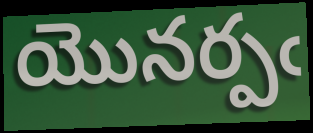
యొనర్పఁ